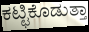
ಕಟ್ಟಿಕೊಡುತ್ತಾ